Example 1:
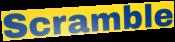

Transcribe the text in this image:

Scramble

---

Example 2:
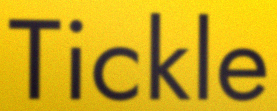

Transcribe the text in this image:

Tickle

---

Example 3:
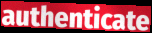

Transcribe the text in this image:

authenticate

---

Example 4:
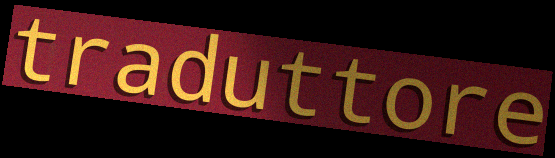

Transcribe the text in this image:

traduttore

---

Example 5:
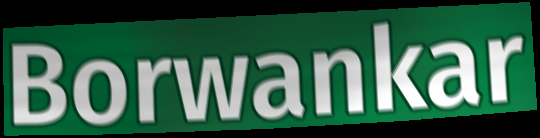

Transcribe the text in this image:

Borwankar